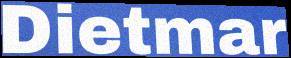
Dietmar